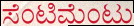
ಸೆಂಟಿಮೆಂಟು